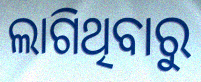
ଲାଗିଥିବାରୁ